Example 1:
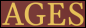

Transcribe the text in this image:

AGES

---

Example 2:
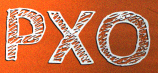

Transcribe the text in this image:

PXO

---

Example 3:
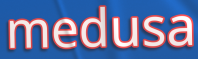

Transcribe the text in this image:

medusa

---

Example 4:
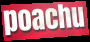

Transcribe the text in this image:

poachu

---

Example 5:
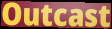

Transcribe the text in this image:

Outcast